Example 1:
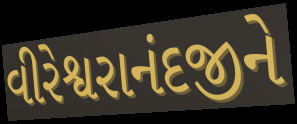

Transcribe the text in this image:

વીરેશ્વરાનંદજીને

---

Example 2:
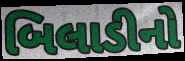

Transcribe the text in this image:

બિલાડીનો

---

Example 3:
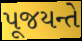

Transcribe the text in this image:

પૂજયન્તે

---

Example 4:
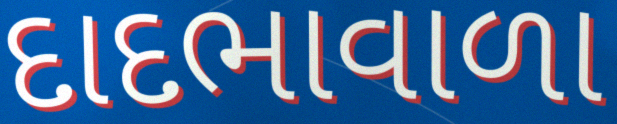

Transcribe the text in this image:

દાદભાવાળા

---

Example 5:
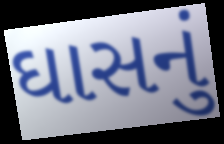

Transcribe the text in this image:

ઘાસનું